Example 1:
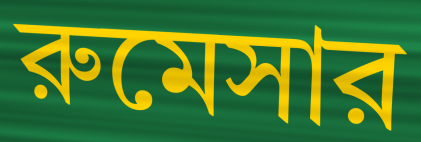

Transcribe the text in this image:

রুমেসার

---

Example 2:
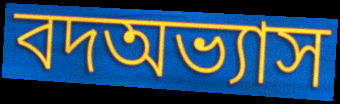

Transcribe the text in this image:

বদঅভ্যাস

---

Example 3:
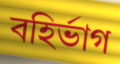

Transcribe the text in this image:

বহির্ভাগ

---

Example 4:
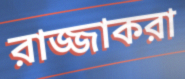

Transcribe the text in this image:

রাজ্জাকরা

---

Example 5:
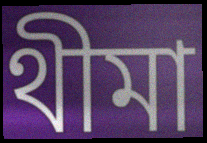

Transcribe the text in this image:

থীমা